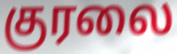
குரலை